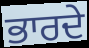
ਭਾਰਦੇ